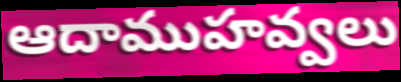
ఆదాముహవ్వలు